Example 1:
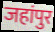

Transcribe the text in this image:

जहांपुर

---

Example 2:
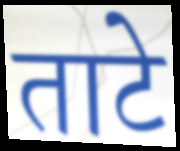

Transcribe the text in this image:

ताटे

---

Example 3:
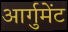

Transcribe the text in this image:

आर्गुमेंट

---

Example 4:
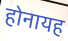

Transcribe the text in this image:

होनायह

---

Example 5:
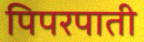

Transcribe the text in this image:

पिपरपाती